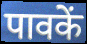
पावकें